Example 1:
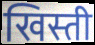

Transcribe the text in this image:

खिस्ती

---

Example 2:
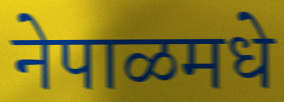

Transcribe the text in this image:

नेपाळमधे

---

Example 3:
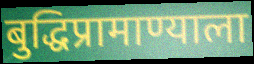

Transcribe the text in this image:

बुद्धिप्रामाण्याला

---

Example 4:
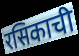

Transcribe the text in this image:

रसिकाची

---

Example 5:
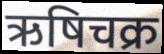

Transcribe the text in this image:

ऋषिचक्र